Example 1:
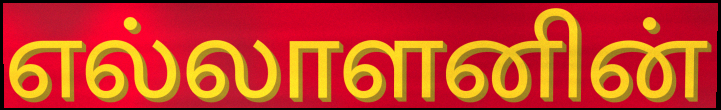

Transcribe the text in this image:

எல்லாளனின்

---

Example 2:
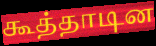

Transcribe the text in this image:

கூத்தாடின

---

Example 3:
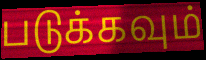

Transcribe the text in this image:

படுக்கவும்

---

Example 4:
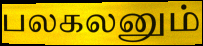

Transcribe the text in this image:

பலகலனும்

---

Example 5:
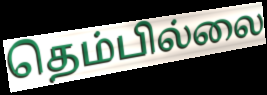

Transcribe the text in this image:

தெம்பில்லை